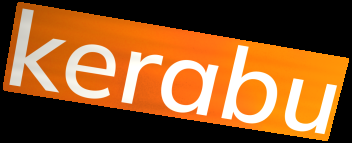
kerabu